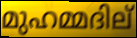
മുഹമ്മദില്